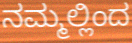
ನಮ್ಮಲ್ಲಿಂದ